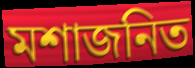
মশাজনিত